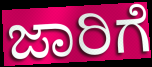
ಜಾರಿಗೆ